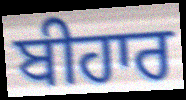
ਬੀਹਾਰ